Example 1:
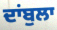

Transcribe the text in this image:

ਦਾਂਬੁਲਾ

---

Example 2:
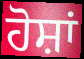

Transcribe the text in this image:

ਹੋਸ਼ਾਂ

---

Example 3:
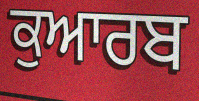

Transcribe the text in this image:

ਕੁਆਰਬ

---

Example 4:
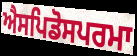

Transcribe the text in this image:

ਐਸਪਿਡੋਸਪਰਮਾ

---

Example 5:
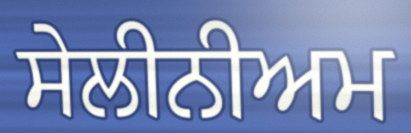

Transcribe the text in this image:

ਸੇਲੀਨੀਅਮ